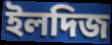
ইলদিজ